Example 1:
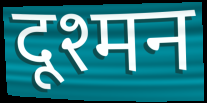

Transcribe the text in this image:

दूश्मन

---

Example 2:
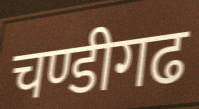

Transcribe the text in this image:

चण्डीगढ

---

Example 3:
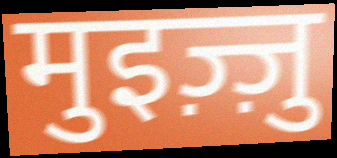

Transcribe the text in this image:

मुइज़्ज़ु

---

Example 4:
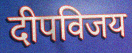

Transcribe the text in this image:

दीपविजय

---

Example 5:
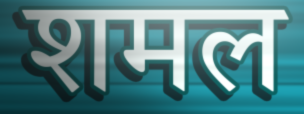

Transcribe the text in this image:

शमल